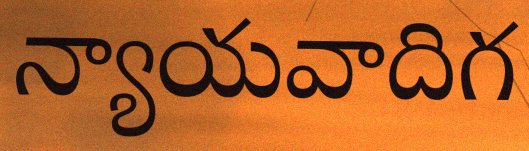
న్యాయవాదిగ